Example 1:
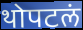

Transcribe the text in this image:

थोपटलं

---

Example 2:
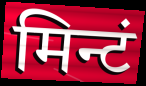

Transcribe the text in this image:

मिन्टं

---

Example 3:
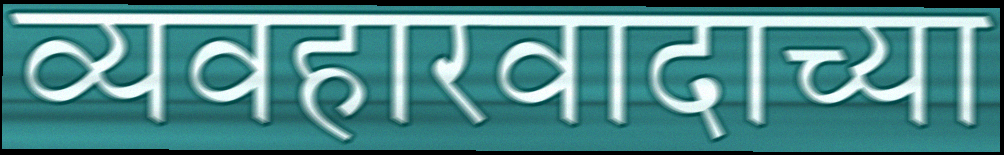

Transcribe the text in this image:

व्यवहारवादाच्या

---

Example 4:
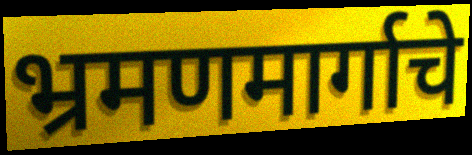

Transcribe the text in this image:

भ्रमणमार्गाचे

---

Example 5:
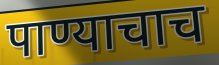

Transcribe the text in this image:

पाण्याचाच